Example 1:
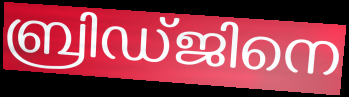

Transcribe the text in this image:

ബ്രിഡ്ജിനെ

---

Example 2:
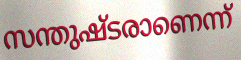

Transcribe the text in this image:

സന്തുഷ്ടരാണെന്ന്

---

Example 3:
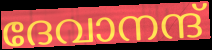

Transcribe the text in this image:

ദേവാനന്ദ്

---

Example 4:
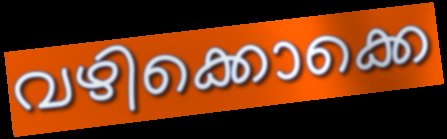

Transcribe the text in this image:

വഴിക്കൊക്കെ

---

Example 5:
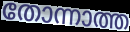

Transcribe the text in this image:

തോന്നാത്ത